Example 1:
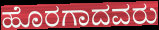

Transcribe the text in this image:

ಹೊರಗಾದವರು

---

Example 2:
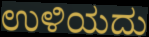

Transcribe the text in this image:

ಉಳಿಯದು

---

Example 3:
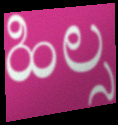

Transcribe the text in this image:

ಹಿಲ್ಸ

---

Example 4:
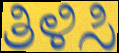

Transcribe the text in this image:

ತಿಳಿಸಿ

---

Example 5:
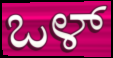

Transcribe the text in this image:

ಒಳ್